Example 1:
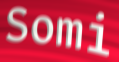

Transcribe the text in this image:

Somi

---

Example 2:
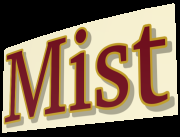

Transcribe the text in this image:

Mist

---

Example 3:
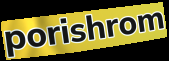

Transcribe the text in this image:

porishrom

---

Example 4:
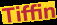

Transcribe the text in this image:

Tiffin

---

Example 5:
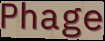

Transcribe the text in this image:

Phage